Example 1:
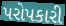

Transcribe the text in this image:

પરોપકારી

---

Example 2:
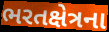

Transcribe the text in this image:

ભરતક્ષેત્રના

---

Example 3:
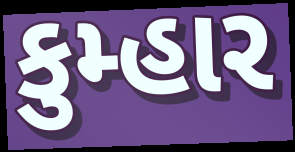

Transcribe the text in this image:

કુમ્હાર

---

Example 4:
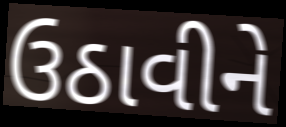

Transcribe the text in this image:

ઉઠાવીને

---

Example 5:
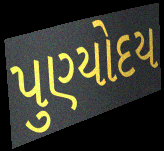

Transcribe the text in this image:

પુણ્યોદય